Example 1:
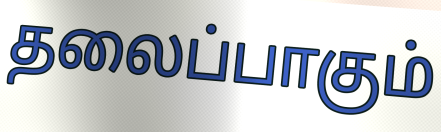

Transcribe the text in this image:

தலைப்பாகும்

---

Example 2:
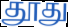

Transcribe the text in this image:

தூது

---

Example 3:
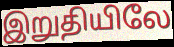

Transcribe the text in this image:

இறுதியிலே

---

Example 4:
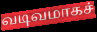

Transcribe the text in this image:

வடிவமாகச்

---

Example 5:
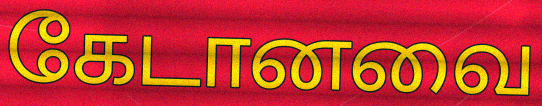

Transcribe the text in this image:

கேடானவை